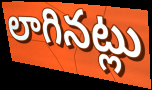
లాగినట్లు